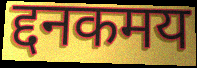
द्दनकमय